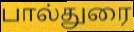
பால்துரை